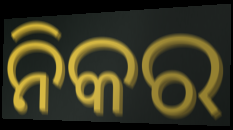
ନିକର